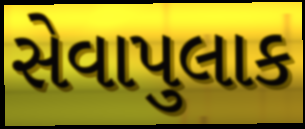
સેવાપુલાક